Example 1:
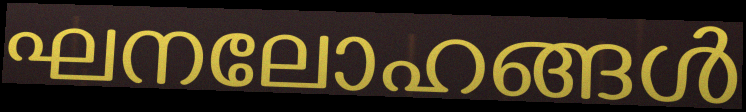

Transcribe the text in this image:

ഘനലോഹങ്ങൾ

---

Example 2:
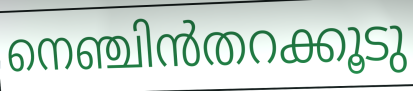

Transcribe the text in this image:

നെഞ്ചിൻതറക്കൂടു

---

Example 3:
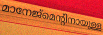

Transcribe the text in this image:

മാനേജ്മെന്റിനായുള്ള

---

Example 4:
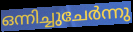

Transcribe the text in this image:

ഒന്നിച്ചുചേർന്നു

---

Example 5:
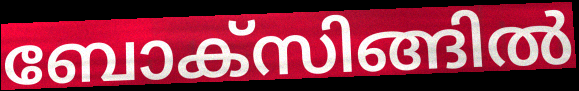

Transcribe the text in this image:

ബോക്സിങ്ങിൽ